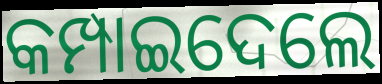
କମ୍ପାଇଦେଲେ